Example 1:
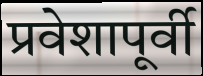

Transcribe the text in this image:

प्रवेशापूर्वी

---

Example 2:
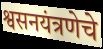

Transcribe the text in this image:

श्वसनयंत्रणेचे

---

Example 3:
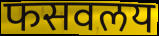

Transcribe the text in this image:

फसवलय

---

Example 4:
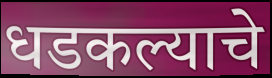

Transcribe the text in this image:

धडकल्याचे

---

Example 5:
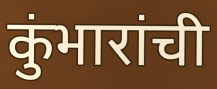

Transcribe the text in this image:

कुंभारांची